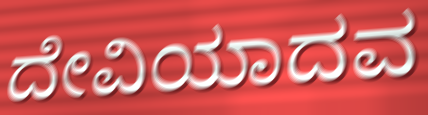
ದೇವಿಯಾದವ